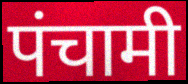
पंचामी